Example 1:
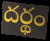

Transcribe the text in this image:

దర్థం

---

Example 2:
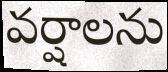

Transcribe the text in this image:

వర్షాలను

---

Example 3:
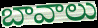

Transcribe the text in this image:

బావాలు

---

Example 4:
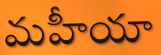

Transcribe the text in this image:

మహీయా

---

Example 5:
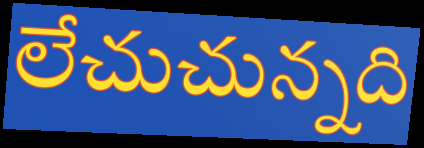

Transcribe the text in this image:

లేచుచున్నది